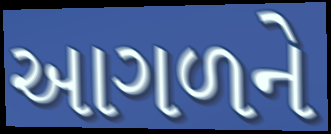
આગળને